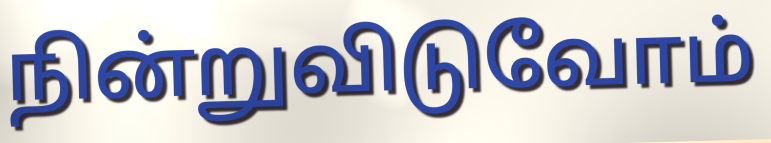
நின்றுவிடுவோம்